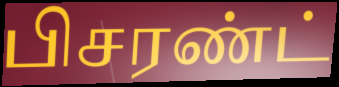
பிசரண்ட்